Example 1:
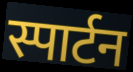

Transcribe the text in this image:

स्पार्टन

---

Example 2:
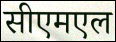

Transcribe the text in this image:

सीएमएल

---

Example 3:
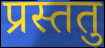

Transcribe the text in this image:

प्रस्ततु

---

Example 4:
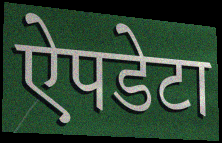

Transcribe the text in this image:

ऐपडेटा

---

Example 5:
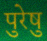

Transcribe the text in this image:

पुरेषु